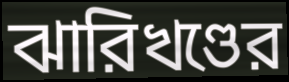
ঝারিখণ্ডের